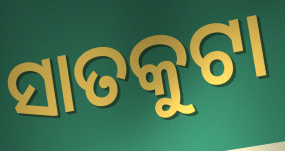
ସାତକୁଟା